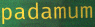
padamum